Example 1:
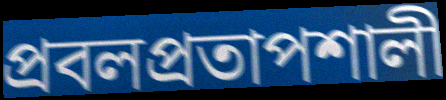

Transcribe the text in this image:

প্রবলপ্রতাপশালী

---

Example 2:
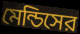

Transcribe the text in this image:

মেন্ডিসের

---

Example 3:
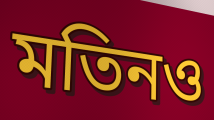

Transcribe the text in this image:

মতিনও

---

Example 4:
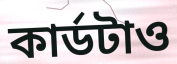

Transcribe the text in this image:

কার্ডটাও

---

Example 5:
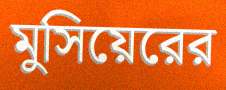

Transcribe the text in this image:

মুসিয়েরের